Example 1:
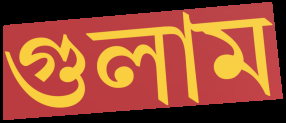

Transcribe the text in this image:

গুলাম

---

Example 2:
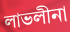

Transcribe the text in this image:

লাভলীনা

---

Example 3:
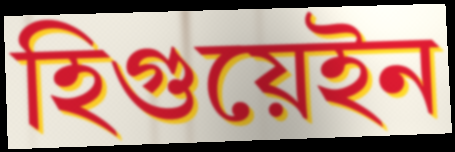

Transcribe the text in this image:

হিগুয়েইন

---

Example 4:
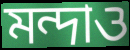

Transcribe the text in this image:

মন্দাও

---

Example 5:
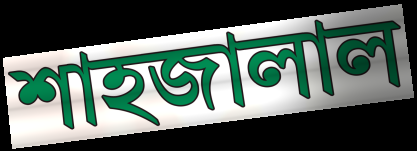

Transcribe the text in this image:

শাহজালাল